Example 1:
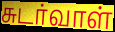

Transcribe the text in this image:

சுடர்வாள்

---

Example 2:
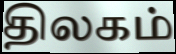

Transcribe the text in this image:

திலகம்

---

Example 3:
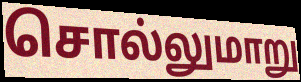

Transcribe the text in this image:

சொல்லுமாறு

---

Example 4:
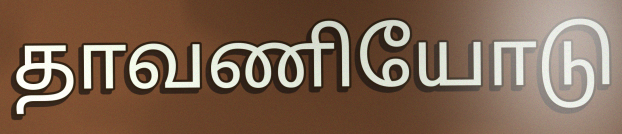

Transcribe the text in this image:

தாவணியோடு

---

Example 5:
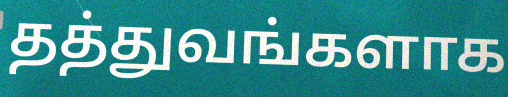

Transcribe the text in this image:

தத்துவங்களாக